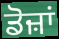
ਡੋਜ਼ਾਂ